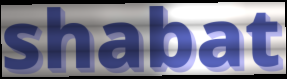
shabat